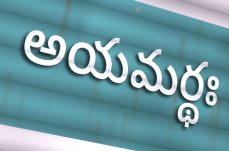
అయమర్థః